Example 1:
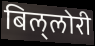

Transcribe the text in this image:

बिल्लोरी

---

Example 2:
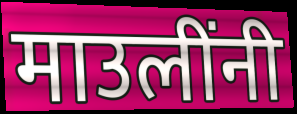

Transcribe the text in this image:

माउलींनी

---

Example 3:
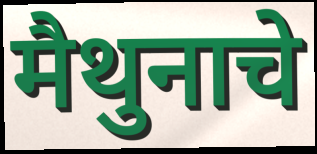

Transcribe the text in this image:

मैथुनाचे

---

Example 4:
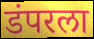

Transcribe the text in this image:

डंपरला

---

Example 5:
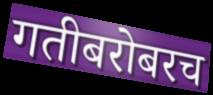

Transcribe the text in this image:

गतीबरोबरच